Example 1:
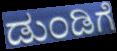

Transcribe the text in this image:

ಡುಂಡಿಗೆ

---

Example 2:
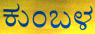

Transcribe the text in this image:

ಕುಂಬಳ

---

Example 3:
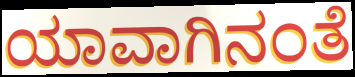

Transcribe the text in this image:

ಯಾವಾಗಿನಂತೆ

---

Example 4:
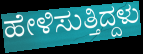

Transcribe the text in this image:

ಹೇಳಿಸುತ್ತಿದ್ದಳು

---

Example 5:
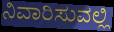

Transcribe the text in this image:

ನಿವಾರಿಸುವಲ್ಲಿ